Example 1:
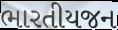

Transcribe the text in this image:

ભારતીયજન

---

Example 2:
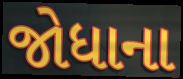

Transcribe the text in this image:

જોધાના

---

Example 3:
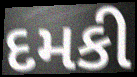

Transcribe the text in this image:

દમકી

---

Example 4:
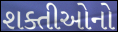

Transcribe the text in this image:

શક્તીઓનો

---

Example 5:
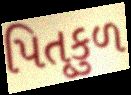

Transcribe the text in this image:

પિતૃકુળ